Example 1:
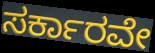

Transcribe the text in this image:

ಸರ್ಕಾರವೇ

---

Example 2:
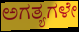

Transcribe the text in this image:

ಅಗತ್ಯಗಳೇ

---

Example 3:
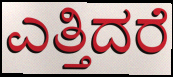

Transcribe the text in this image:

ಎತ್ತಿದರೆ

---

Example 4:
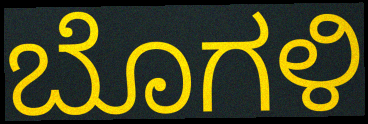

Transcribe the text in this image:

ಬೊಗಳಿ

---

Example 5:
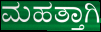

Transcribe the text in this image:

ಮಹತ್ತಾಗಿ